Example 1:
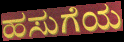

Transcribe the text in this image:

ಹಸುಗೆಯ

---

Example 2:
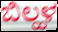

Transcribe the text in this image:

ಬಿಲ್ಹಳ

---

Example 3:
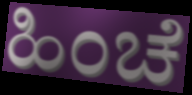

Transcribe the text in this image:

ಹಿಂಚೆ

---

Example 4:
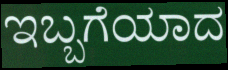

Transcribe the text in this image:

ಇಬ್ಬಗೆಯಾದ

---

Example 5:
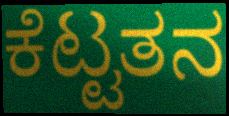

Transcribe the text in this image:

ಕೆಟ್ಟತನ